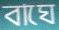
বাঘে